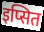
इप्सित